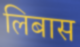
लिबास